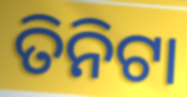
ତିନିଟା